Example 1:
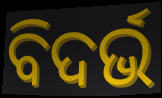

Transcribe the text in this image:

ବିଦର୍ଭ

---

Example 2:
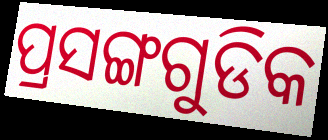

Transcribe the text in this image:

ପ୍ରସଙ୍ଗଗୁଡିକ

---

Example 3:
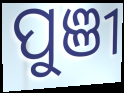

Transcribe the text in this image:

ପୁଞୀ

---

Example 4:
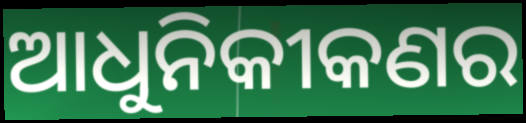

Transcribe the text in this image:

ଆଧୁନିକୀକଣର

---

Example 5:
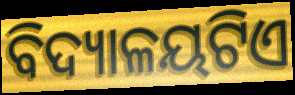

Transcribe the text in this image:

ବିଦ୍ୟାଳୟଟିଏ